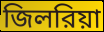
জিলরিয়া